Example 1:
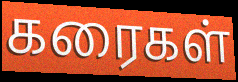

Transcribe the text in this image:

கரைகள்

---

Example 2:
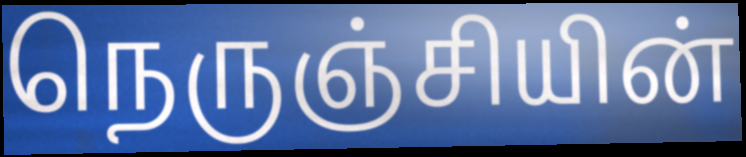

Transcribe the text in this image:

நெருஞ்சியின்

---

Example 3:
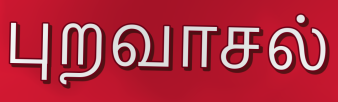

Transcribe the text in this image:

புறவாசல்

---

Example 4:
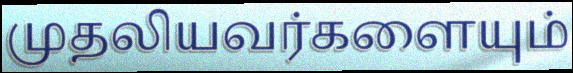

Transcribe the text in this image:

முதலியவர்களையும்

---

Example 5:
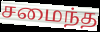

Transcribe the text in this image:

சமைந்த